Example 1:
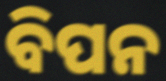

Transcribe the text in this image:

ବିପନ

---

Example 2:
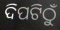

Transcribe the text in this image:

ଦିପଟିଠୁଁ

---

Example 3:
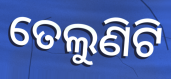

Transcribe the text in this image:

ତେଲୁଣିଟି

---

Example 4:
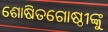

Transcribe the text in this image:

ଶୋଷିତଗୋଷ୍ଠୀଙ୍କୁ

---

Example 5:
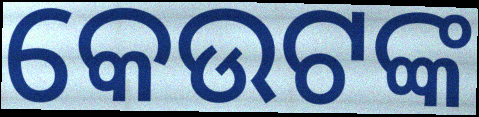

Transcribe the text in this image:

କେଉଟଙ୍କ